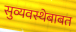
सुव्यवस्थेबाबत